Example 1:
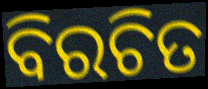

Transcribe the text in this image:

ବିରଚିତ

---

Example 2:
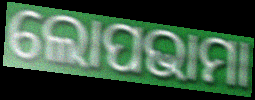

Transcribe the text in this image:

ଲୋପଭାମା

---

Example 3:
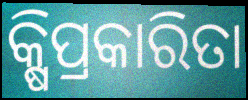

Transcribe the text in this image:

କ୍ଷିପ୍ରକାରିତା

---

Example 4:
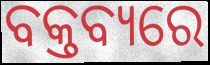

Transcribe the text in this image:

ବକ୍ତବ୍ୟରେ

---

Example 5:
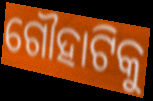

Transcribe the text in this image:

ଗୌହାଟିକୁ